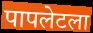
पापलेटला